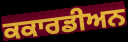
ਕਕਾਰਡੀਅਨ